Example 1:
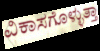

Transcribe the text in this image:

ವಿಕಾಸಗೊಳ್ಳುತ್ತಾ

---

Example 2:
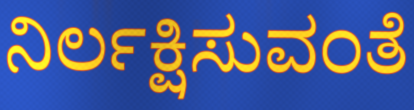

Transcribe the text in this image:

ನಿರ್ಲಕ್ಷಿಸುವಂತೆ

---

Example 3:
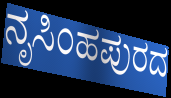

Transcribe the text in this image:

ನೃಸಿಂಹಪುರದ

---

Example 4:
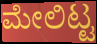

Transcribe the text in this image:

ಮೇಲಿಟ್ಟ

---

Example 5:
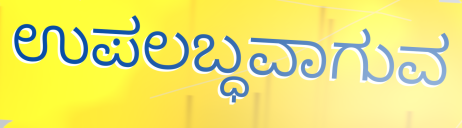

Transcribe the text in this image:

ಉಪಲಬ್ಧವಾಗುವ